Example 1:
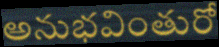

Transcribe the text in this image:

అనుభవింతురో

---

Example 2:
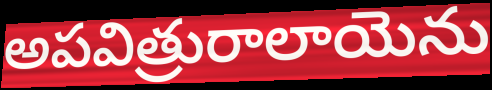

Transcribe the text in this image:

అపవిత్రురాలాయెను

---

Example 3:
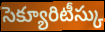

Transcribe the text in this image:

సెక్యూరిటీస్కు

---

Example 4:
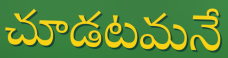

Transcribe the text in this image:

చూడటమనే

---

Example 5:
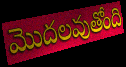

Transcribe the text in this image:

మొదలవుతోంది